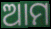
ଆମ